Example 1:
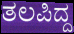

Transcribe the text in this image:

ತಲಪಿದ್ದ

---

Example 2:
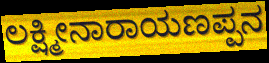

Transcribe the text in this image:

ಲಕ್ಷ್ಮೀನಾರಾಯಣಪ್ಪನ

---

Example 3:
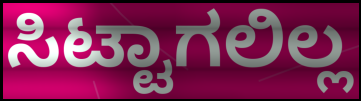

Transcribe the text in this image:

ಸಿಟ್ಟಾಗಲಿಲ್ಲ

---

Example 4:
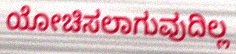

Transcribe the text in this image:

ಯೋಚಿಸಲಾಗುವುದಿಲ್ಲ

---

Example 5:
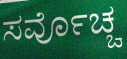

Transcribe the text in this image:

ಸರ್ವೊಚ್ಚ